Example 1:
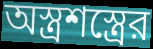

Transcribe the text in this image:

অস্ত্রশস্ত্রের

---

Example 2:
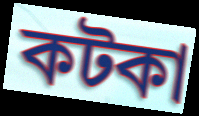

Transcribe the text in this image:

কটকা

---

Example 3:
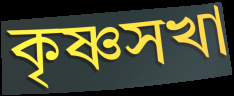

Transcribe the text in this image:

কৃষ্ণসখা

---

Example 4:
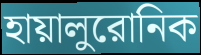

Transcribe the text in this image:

হায়ালুরোনিক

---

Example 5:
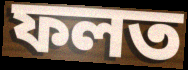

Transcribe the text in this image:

ফলত